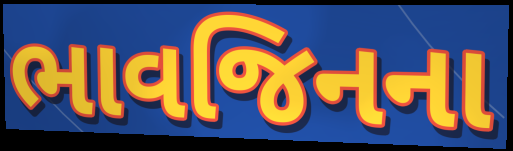
ભાવજિનના